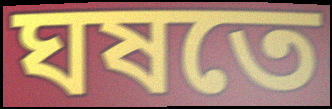
ঘষতে